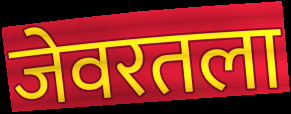
जेवरतला